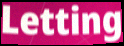
Letting